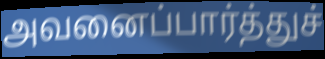
அவனைப்பார்த்துச்